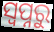
ସ୍ବପ୍ନରୁ